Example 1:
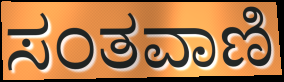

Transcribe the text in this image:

ಸಂತವಾಣಿ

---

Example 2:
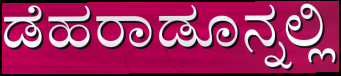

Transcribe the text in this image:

ಡೆಹರಾಡೂನ್ನಲ್ಲಿ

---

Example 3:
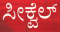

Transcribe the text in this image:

ಸೀಕ್ವೆಲ್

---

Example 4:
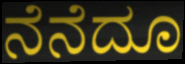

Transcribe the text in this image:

ನೆನೆದೂ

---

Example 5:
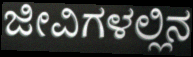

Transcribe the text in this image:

ಜೀವಿಗಳಲ್ಲಿನ